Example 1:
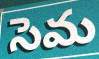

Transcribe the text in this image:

సెమ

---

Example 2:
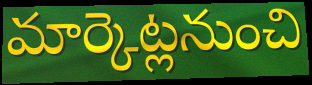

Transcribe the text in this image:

మార్కెట్లనుంచి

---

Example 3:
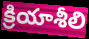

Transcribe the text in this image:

క్రియాశీలి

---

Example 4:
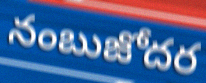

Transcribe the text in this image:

నంబుజోదర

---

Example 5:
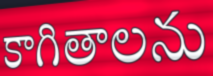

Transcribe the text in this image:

కాగితాలను